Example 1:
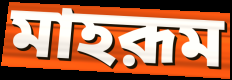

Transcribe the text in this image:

মাহরূম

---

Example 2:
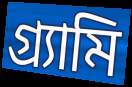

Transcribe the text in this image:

গ্র্যামি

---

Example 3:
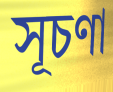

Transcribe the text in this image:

সূচণা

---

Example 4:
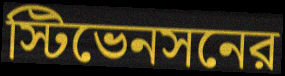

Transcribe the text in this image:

স্টিভেনসনের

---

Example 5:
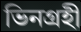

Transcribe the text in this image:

ভিনগ্রহী